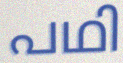
പഥി